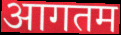
आगतम